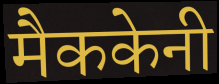
मैककेनी